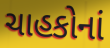
ચાહકોનાં